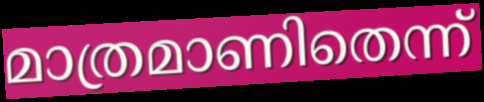
മാത്രമാണിതെന്ന്